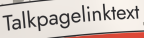
Talkpagelinktext